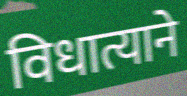
विधात्याने